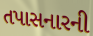
તપાસનારની